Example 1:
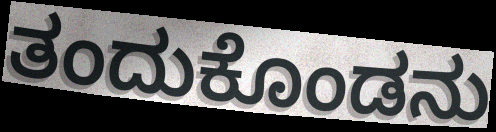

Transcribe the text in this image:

ತಂದುಕೊಂಡನು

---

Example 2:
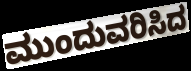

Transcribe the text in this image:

ಮುಂದುವರಿಸಿದ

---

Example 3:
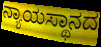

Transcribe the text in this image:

ನ್ಯಾಯಸ್ಥಾನದ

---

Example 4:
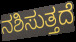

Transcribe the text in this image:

ನಶಿಸುತ್ತದೆ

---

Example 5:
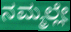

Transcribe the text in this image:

ನಮ್ಮಲ್ಲೇ